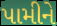
પામીને